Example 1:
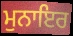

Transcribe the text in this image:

ਮੁਨਾਇਰ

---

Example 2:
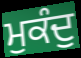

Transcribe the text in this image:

ਮੁਕੰਦੁ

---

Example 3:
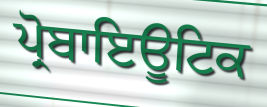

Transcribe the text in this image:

ਪ੍ਰੋਬਾਇਊਟਿਕ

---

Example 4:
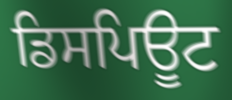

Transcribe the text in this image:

ਡਿਸਪਿਊਟ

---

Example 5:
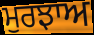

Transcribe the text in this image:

ਮੁਰਝਾਅ